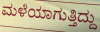
ಮಳೆಯಾಗುತ್ತಿದ್ದು